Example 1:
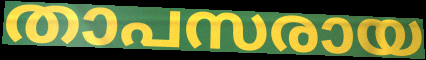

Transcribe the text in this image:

താപസരായ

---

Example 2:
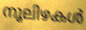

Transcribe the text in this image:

നൂലിഴകൾ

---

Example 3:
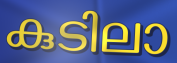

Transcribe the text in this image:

കുടിലാ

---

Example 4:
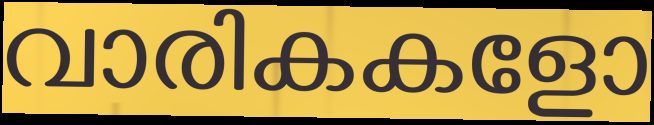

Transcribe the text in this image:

വാരികകളോ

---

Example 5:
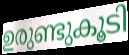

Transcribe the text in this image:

ഉരുണ്ടുകൂടി